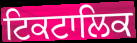
ਟਿਕਟਾਲਿਕ